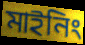
মাইনিং